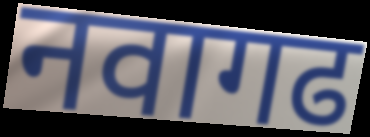
नवागढ